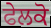
ਫੇਲਕੋ